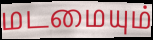
மடமையும்